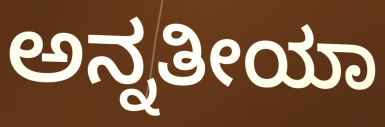
ಅನ್ನತೀಯಾ